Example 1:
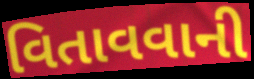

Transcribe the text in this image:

વિતાવવાની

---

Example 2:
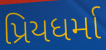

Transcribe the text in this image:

પ્રિયધર્મા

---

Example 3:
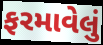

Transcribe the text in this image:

ફરમાવેલું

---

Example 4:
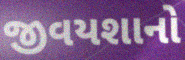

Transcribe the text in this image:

જીવયશાનો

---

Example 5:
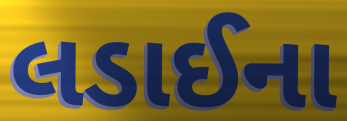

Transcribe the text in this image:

લડાઈના